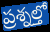
ప్రశ్నల్తో